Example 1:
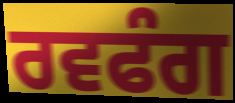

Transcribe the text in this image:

ਰਵਫੰਗ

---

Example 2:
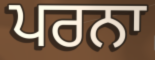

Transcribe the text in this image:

ਪਰਨਾ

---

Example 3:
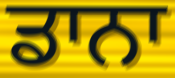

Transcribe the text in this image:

ਡਾਨਾ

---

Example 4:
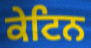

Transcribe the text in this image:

ਕੇਟਿਨ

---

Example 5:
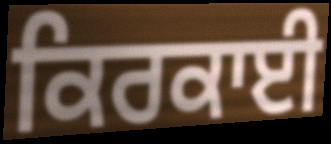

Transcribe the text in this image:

ਕਿਰਕਾਈ